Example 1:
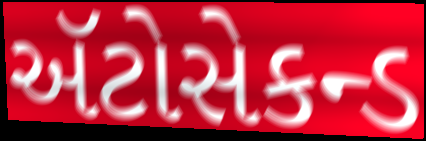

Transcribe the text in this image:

ઍટોસેકન્ડ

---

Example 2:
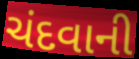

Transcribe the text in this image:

ચંદવાની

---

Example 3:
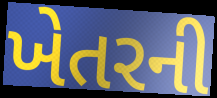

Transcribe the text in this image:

ખેતરની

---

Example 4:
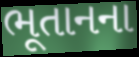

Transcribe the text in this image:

ભૂતાનના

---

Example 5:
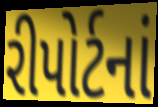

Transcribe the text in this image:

રીપોર્ટનાં